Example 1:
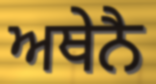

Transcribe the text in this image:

ਅਥੇਨੈ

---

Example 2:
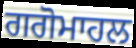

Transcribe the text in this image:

ਗਗੋਮਾਹਲ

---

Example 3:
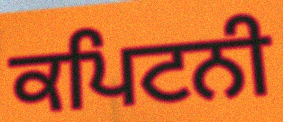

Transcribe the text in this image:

ਕਪਿਟਨੀ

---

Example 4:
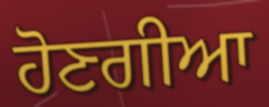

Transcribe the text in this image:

ਹੋਣਗੀਆ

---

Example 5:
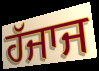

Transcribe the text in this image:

ਹੱਜਾਜ